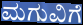
ಮಗುವಿಗೆ